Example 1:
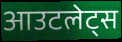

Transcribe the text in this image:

आउटलेट्स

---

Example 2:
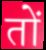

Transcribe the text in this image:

तों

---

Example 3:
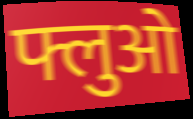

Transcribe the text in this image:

फ्लुओ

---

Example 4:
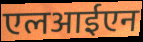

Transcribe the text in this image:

एलआईएन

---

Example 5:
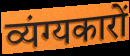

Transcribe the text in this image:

व्‍यंग्‍यकारों